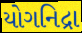
યોગનિદ્રા